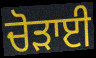
ਚੋੜਾਈ